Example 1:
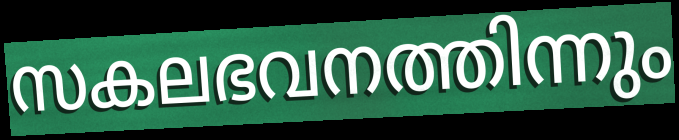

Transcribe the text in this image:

സകലഭവനത്തിന്നും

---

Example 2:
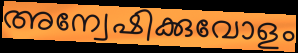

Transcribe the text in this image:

അന്വേഷിക്കുവോളം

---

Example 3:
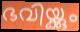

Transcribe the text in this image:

ഭവിയ്ക്കും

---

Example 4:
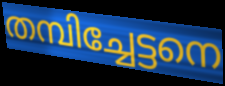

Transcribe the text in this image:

തമ്പിച്ചേട്ടനെ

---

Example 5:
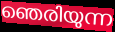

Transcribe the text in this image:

ഞെരിയുന്ന